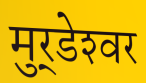
मुर्डेश्वर